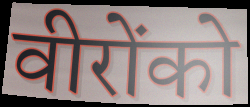
वीरोंको